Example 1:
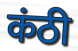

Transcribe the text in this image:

कंठी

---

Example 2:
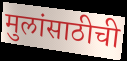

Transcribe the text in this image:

मुलांसाठीची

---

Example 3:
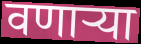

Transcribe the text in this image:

वणाऱ्या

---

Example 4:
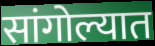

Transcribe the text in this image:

सांगोल्यात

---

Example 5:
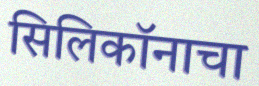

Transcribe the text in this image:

सिलिकॉनाचा